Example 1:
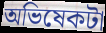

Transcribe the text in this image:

অভিষেকটা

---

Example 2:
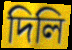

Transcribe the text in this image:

দিলি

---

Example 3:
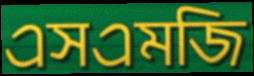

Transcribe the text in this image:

এসএমজি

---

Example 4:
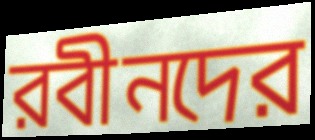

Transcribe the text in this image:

রবীনদের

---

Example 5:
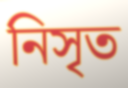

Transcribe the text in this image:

নিসৃত